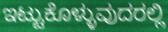
ಇಟ್ಟುಕೊಳ್ಳುವುದರಲ್ಲಿ